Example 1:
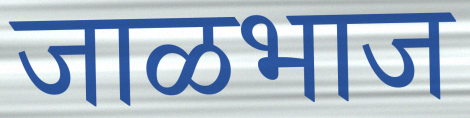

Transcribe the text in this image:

जाळभाज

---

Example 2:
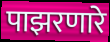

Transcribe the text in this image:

पाझरणारे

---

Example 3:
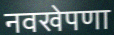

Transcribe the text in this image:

नवखेपणा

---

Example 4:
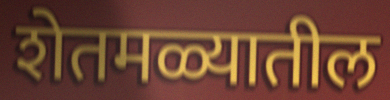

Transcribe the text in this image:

शेतमळ्यातील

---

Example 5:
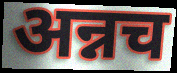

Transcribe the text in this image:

अन्नच